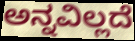
ಅನ್ನವಿಲ್ಲದೆ